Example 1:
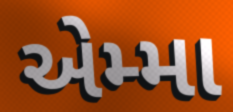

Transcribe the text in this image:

એમ્મા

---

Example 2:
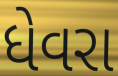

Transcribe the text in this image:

ધેવરા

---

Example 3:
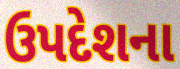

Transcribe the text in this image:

ઉપદેશના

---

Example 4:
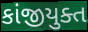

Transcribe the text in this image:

કાંજીયુક્ત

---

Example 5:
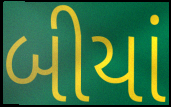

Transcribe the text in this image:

બીયાં